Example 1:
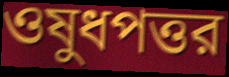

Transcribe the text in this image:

ওষুধপত্তর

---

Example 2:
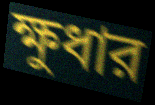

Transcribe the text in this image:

ক্ষুধার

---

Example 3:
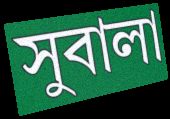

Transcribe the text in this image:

সুবালা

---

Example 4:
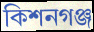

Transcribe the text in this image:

কিশনগঞ্জ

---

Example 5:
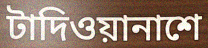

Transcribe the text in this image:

টাদিওয়ানাশে